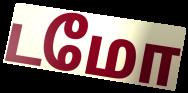
டமோ